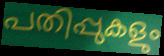
പതിപ്പുകളും